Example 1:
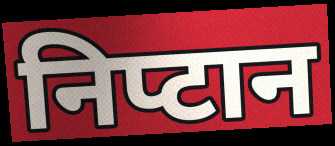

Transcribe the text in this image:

निप्टान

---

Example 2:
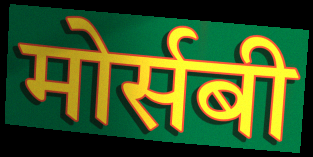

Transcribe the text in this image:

मोर्सबी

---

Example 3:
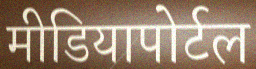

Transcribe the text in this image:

मीडियापोर्टल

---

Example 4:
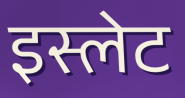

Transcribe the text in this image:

इस्लेट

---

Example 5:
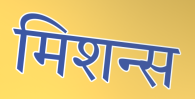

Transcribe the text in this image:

मिशन्स